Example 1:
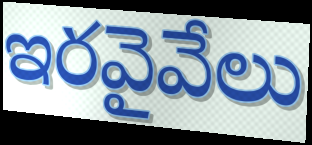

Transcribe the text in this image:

ఇరవైవేలు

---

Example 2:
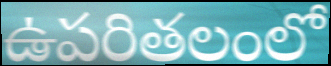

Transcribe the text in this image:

ఉపరితలంలో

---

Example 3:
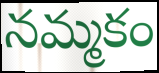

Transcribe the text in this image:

నమ్మకం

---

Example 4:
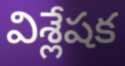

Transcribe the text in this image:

విశ్లేషక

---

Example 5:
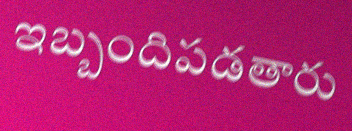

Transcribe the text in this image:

ఇబ్బందిపడతారు